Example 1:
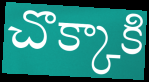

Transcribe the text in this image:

చొక్కాకి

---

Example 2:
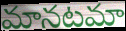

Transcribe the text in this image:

మానటమా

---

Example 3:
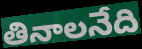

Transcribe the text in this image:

తినాలనేది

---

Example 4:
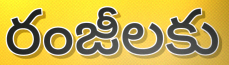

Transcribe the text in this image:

రంజీలకు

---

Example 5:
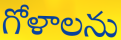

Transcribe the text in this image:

గోళాలను